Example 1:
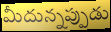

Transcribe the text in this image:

మీదున్నప్పుడు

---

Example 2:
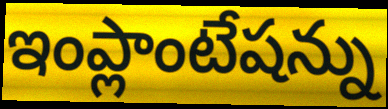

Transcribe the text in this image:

ఇంప్లాంటేషన్ను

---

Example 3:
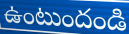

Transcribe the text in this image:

ఉంటుందండి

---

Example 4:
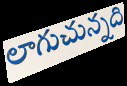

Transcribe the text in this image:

లాగుచున్నది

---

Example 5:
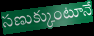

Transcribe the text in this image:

సణుక్కుంటూనే